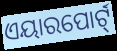
ଏୟାରପୋର୍ଟ୍